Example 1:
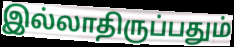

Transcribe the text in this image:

இல்லாதிருப்பதும்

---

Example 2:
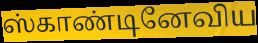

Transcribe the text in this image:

ஸ்காண்டினேவிய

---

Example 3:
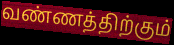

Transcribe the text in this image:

வண்ணத்திற்கும்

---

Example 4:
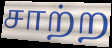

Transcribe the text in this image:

சாற்ற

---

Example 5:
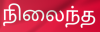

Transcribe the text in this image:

நிலைந்த